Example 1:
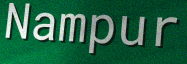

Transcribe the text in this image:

Nampur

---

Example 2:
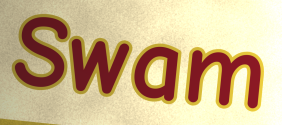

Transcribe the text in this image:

Swam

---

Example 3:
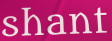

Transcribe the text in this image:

shant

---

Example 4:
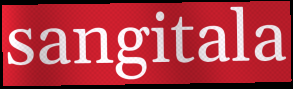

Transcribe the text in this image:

sangitala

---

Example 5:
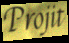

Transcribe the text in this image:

Projit